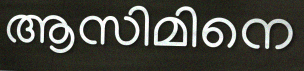
ആസിമിനെ